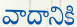
వాదానికి